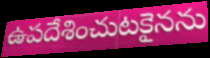
ఉపదేశించుటకైనను